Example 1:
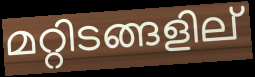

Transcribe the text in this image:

മറ്റിടങ്ങളില്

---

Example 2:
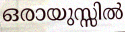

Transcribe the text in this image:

ഒരായുസ്സിൽ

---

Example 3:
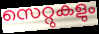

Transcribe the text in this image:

സെറ്റുകളും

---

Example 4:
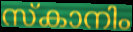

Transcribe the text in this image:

സ്‌കാനിം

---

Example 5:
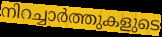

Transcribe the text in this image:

നിറച്ചാർത്തുകളുടെ